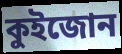
কুইজোন